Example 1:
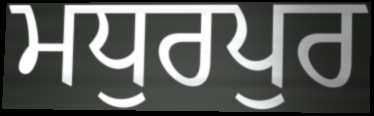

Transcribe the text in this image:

ਮਧੁਰਪੁਰ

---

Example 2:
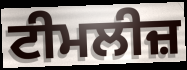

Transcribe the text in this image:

ਟੀਮਲੀਜ਼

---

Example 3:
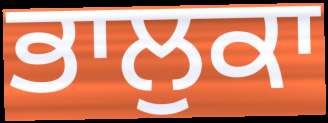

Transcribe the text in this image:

ਭਾਲੁਕਾ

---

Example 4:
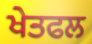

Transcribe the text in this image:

ਖੇਤਫਲ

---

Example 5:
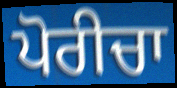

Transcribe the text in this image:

ਪੋਰੀਚਾ